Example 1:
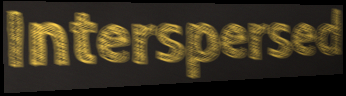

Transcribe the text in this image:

Interspersed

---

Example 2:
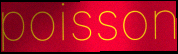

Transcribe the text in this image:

poisson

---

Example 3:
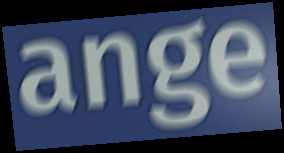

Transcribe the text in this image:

ange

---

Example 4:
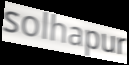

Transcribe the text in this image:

solhapur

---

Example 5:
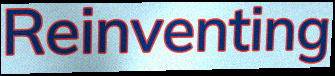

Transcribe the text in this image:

Reinventing